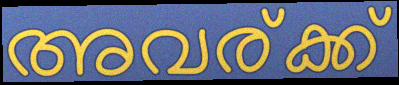
അവര്ക്ക്